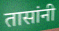
तासांनी